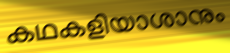
കഥകളിയാശാനും